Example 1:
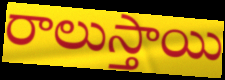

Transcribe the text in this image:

రాలుస్తాయి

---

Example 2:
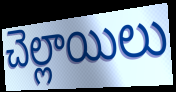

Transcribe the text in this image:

చెల్లాయిలు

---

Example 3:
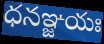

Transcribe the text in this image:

ధనఞ్జయః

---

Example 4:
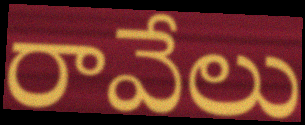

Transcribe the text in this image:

రావేలు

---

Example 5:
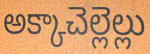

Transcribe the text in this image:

అక్కాచెల్లెల్లు